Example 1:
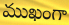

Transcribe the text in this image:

ముఖంగా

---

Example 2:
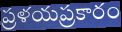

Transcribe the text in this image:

ప్రళయప్రకారం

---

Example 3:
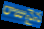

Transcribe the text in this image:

రాజునైన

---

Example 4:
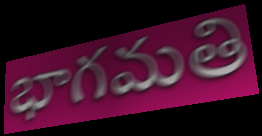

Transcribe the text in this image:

భాగమతి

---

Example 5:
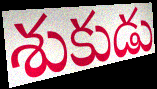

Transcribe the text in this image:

శుకుడు